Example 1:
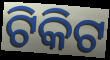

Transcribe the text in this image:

ଟିକିଟ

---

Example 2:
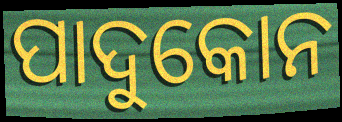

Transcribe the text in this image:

ପାଦୁକୋନ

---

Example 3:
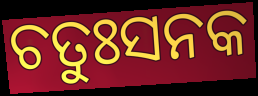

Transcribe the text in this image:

ଚତୁଃସନକ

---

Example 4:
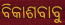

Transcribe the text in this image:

ବିକାଶବାବୁ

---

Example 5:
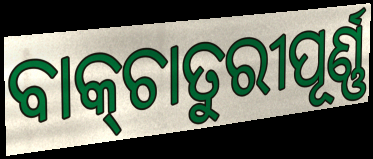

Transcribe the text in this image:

ବାକ୍‌ଚାତୁରୀପୂର୍ଣ୍ଣ